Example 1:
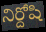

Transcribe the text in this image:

నిర్దోషి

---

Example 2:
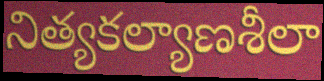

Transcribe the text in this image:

నిత్యకల్యాణశీలా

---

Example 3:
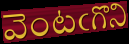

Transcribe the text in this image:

వెంటఁగొని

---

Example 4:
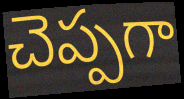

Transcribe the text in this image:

చెప్పగా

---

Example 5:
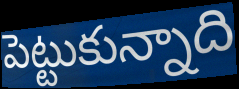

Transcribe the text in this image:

పెట్టుకున్నాది